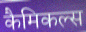
कैमिकल्स